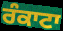
ਰੰਕਾਟਾ